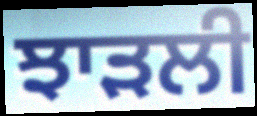
ਝਾੜਲੀ